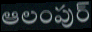
ఆలంపుర్